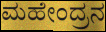
ಮಹೇಂದ್ರನ